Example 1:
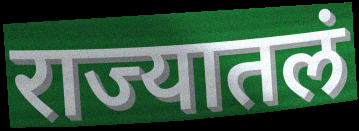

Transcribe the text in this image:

राज्यातलं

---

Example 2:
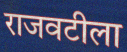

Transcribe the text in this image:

राजवटीला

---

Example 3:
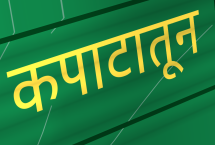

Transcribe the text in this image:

कपाटातून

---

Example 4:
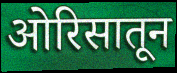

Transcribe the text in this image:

ओरिसातून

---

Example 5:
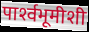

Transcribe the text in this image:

पार्श्वभूमीशी